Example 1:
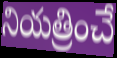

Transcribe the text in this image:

నియత్రించే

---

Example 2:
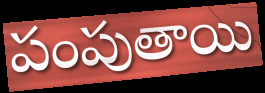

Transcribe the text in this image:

పంపుతాయి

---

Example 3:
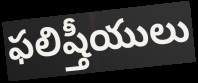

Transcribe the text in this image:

ఫలిష్తీయులు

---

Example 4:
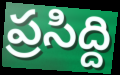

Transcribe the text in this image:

ప్రసిద్ది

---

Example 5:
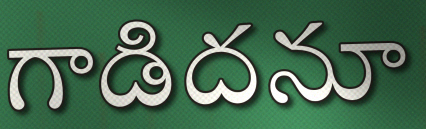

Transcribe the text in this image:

గాడిదనూ